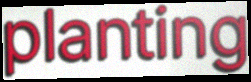
planting